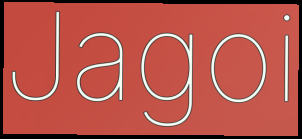
Jagoi